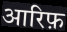
आरिफ़